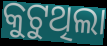
କୁଟୁଥିଲା